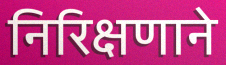
निरिक्षणाने